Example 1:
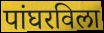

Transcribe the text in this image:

पांघरविला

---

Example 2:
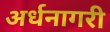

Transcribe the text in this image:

अर्धनागरी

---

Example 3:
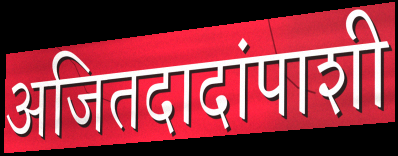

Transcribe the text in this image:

अजितदादांपाशी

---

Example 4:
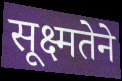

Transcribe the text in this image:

सूक्ष्मतेने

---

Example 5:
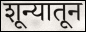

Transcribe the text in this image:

शून्यातून